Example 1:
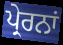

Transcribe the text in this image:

ਪ੍ਰੇਰਨਾਂ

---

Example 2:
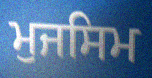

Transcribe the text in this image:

ਮੁਜਸਿਮ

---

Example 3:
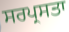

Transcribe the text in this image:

ਸਰਪ੍ਰਸਤਾ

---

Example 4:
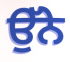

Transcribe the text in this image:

ਉੱਨੇ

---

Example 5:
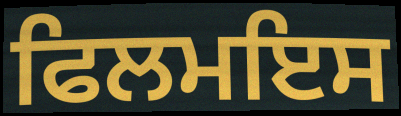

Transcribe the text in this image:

ਫਿਲਮਇਸ